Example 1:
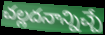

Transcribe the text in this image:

చల్లదనాన్నిచ్చే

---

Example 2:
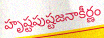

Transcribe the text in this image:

హృష్టపుష్టజనాకీర్ణం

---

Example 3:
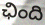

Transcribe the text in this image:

ఛింది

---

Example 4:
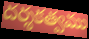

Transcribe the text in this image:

దర్శకత్వము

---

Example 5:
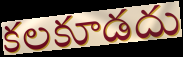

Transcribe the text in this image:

కలకూడదు